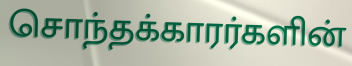
சொந்தக்காரர்களின்